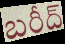
బరీద్